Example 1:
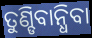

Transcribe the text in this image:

ତୁଣ୍ଡିବାନ୍ଧିବା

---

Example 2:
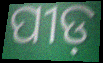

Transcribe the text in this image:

ପୀଡ଼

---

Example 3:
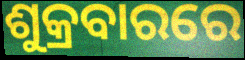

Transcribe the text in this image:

ଶୁକ୍ରବାରରେ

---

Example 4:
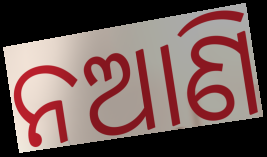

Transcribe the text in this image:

ନଆଣି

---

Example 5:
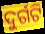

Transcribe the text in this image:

ଦୁର୍ଗଟି